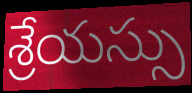
శ్రేయస్సు